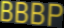
BBBP